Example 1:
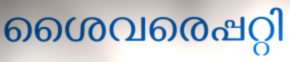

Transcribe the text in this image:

ശൈവരെപ്പറ്റി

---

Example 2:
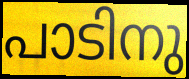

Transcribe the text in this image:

പാടിനു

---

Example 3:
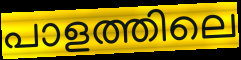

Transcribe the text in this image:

പാളത്തിലെ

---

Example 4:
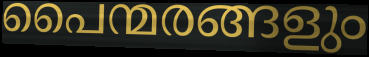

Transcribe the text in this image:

പൈന്മരങ്ങളും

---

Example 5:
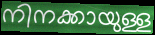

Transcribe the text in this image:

നിനക്കായുള്ള